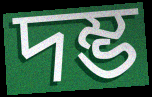
দম্ভ